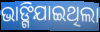
ଭାଙ୍ଗିଯାଇଥିଲା